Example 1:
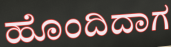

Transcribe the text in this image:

ಹೊಂದಿದಾಗ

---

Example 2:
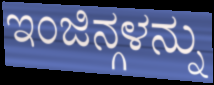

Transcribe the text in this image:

ಇಂಜಿನ್ಗಳನ್ನು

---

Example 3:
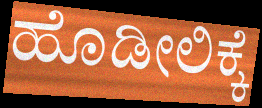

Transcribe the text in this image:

ಹೊಡೀಲಿಕ್ಕೆ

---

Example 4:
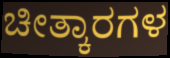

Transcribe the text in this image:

ಚೀತ್ಕಾರಗಳ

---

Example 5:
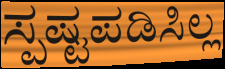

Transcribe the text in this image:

ಸ್ಪಷ್ಟಪಡಿಸಿಲ್ಲ